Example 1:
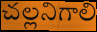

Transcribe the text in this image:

చల్లనిగాలి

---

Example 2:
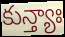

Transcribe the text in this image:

కున్త్యాః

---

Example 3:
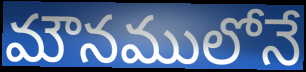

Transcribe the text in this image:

మౌనములోనే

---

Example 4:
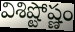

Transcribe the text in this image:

విశిష్టోష్ణం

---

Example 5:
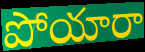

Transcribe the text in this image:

పోయారా